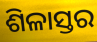
ଶିଳାସ୍ତର